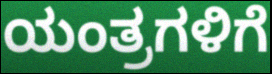
ಯಂತ್ರಗಳಿಗೆ